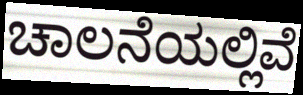
ಚಾಲನೆಯಲ್ಲಿವೆ